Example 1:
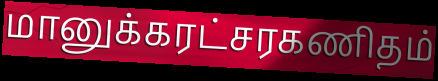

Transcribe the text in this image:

மானுக்கரட்சரகணிதம்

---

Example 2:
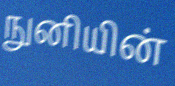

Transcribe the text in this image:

நுனியின்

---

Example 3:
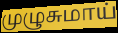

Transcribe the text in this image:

முழுசுமாய்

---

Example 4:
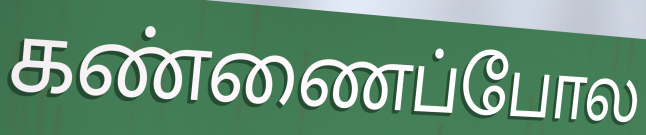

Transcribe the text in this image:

கண்ணைப்போல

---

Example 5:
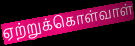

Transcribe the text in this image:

ஏற்றுக்கொள்வாள்